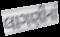
લાગણીનાં